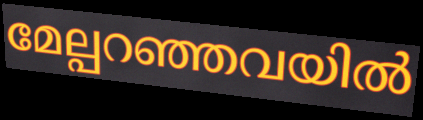
മേല്പറഞ്ഞവയിൽ